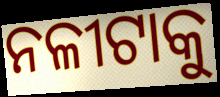
ନଳୀଟାକୁ